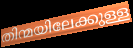
തിന്മയിലേക്കുള്ള